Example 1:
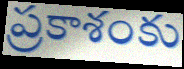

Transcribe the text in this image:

ప్రకాశంకు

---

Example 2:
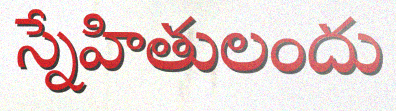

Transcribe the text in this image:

స్నేహితులందు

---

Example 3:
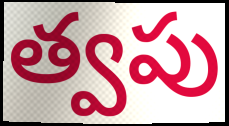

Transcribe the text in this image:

త్వపు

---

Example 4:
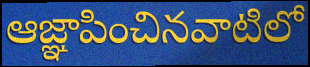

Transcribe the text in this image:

ఆజ్ఞాపించినవాటిలో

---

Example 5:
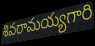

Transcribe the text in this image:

శివరామయ్యగారి